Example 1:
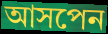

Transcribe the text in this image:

আসপেন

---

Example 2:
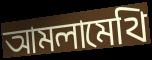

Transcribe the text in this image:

আমলামেথি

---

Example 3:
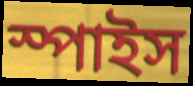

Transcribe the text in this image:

স্পাইস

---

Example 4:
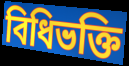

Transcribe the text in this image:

বিধিভক্তি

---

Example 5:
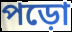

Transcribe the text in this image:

পড়ো